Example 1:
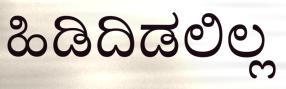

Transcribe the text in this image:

ಹಿಡಿದಿಡಲಿಲ್ಲ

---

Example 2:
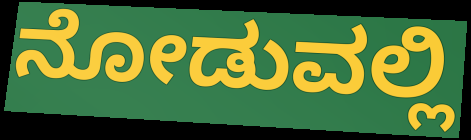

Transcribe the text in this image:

ನೋಡುವಲ್ಲಿ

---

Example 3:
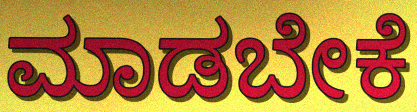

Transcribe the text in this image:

ಮಾಡಬೇಕೆ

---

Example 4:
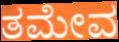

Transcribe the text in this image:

ತಮೇವ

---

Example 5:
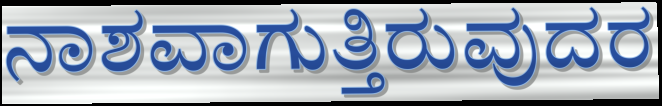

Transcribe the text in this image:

ನಾಶವಾಗುತ್ತಿರುವುದರ